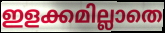
ഇളക്കമില്ലാതെ